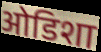
ओडिशा